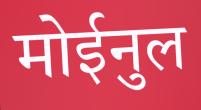
मोईनुल